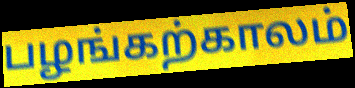
பழங்கற்காலம்